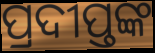
ପ୍ରଦୀପ୍ତଙ୍କ